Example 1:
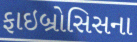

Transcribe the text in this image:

ફાઇબ્રોસિસના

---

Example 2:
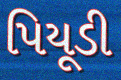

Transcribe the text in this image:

પિયૂડી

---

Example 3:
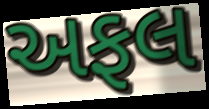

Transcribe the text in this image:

અફલ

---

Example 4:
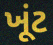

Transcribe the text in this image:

ખૂંટ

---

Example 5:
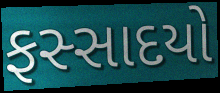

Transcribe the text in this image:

ફસ્સાદયો